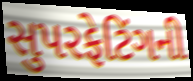
સુપરફેટિંગની